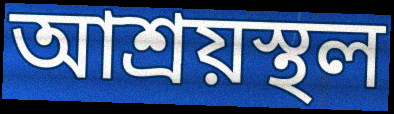
আশ্রয়স্থল